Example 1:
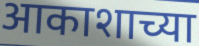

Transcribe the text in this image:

आकाशाच्या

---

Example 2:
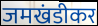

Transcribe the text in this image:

जमखंडीकर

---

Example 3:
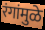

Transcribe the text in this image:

रंगांमुळे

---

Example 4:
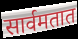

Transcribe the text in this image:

सार्वमतात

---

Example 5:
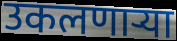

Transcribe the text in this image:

उकलणाऱ्या